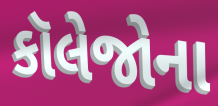
કૉલેજોના